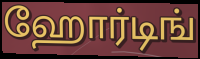
ஹோர்டிங்